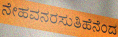
ನೇಹವನರಸುತಿಹೆನೆಂದ